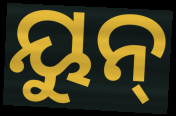
ୟୁନ୍